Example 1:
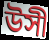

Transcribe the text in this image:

উসী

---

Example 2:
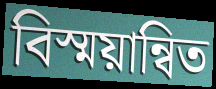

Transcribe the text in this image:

বিস্ময়ান্বিত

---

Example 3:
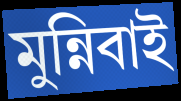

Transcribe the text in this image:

মুন্নিবাই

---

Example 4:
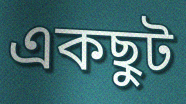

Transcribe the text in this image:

একছুট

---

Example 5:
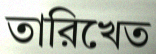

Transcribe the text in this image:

তারিখেত